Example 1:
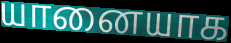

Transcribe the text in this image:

யானையாக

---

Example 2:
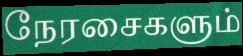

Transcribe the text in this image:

நேரசைகளும்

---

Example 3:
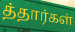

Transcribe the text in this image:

த்தார்கள்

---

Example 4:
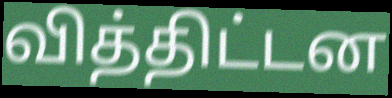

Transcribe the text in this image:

வித்திட்டன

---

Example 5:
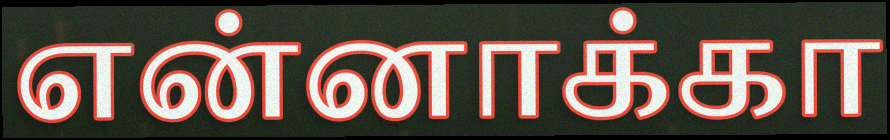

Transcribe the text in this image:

என்னாக்கா